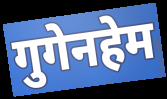
गुगेनहेम